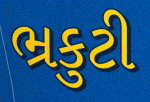
ભ્રકુટી